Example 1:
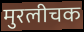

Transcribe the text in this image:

मुरलीचक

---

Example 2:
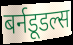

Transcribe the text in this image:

बर्नडूडल्स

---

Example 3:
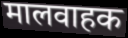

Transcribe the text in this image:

मालवाहक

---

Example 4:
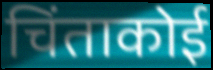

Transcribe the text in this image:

चिंताकोई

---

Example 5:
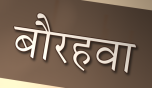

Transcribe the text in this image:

बौरहवा